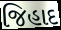
જિહાદ